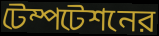
টেম্পটেশনের